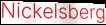
Nickelsberg